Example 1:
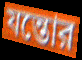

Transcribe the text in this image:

যন্তোর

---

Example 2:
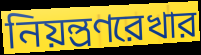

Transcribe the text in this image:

নিয়ন্ত্রণরেখার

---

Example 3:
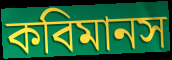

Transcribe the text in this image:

কবিমানস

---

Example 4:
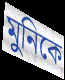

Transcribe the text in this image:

মুনিকে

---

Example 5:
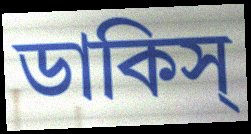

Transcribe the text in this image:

ডাকিস্